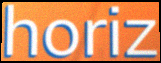
horiz